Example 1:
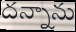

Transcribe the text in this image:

దన్నాను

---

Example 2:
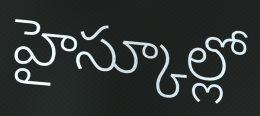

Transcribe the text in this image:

హైస్కూల్లో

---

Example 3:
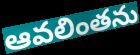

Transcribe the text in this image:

ఆవలింతను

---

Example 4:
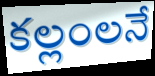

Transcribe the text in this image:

కల్లంలనే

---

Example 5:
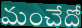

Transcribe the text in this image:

మంచేదో